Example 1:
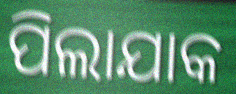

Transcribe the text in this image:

ପିଲାଯାକ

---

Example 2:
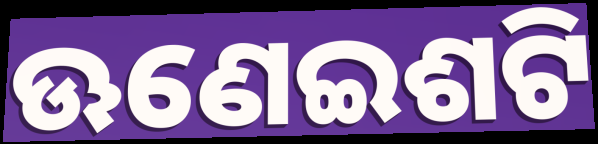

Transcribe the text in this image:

ଊଣେଇଶଟି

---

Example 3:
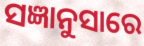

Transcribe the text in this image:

ସଜ୍ଞାନୁସାରେ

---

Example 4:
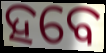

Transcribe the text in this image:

ହବେ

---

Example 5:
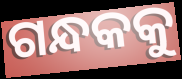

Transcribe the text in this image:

ଗନ୍ଧକକୁ